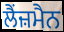
ਲੈਂਜ਼ਮੈਨ